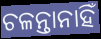
ଚଳନ୍ତାନାହିଁ